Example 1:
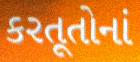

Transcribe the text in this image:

કરતૂતોનાં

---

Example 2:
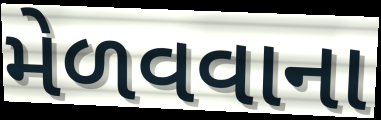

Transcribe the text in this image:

મેળવવાના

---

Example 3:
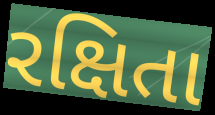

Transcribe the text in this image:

રક્ષિતા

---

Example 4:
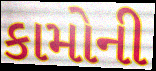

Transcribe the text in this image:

કામોની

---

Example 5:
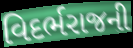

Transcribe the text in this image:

વિદર્ભરાજની